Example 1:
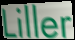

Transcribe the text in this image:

Liller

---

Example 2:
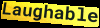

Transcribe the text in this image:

Laughable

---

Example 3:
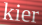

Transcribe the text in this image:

kier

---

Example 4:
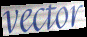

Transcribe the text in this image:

vector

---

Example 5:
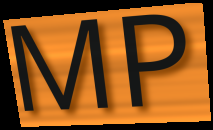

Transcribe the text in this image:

MP